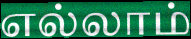
எல்லாம்